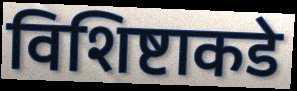
विशिष्टाकडे